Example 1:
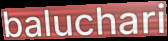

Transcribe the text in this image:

baluchari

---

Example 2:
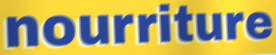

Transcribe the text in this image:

nourriture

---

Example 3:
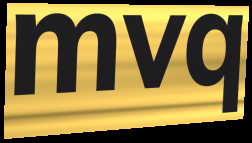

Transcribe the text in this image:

mvq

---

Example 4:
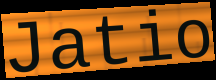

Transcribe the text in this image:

Jatio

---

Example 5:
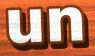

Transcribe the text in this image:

un